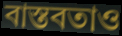
বাস্তবতাও